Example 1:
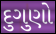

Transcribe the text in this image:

દુગુણો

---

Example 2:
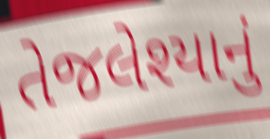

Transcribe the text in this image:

તેજલેશ્યાનું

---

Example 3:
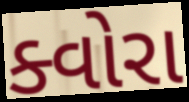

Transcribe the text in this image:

ક્વોરા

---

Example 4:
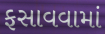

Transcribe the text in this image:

ફસાવવામાં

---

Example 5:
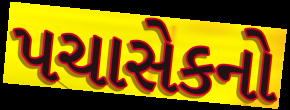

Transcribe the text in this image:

પચાસેકનો